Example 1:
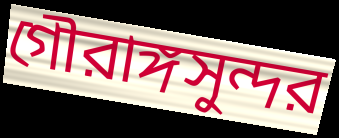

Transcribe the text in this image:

গৌরাঙ্গসুন্দর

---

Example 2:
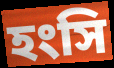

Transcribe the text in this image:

হংসি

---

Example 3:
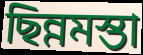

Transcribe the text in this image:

ছিন্নমস্তা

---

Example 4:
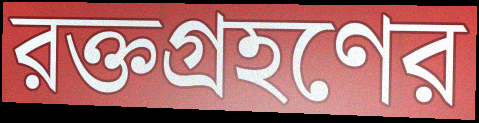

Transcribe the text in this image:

রক্তগ্রহণের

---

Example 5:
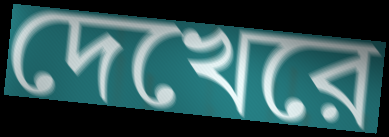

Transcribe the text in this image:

দেখেরে